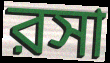
রসা